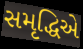
સમૃદ્ધિએ